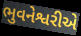
ભુવનેશ્વરીએ